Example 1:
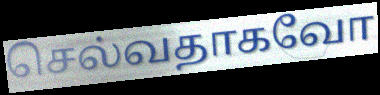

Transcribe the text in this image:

செல்வதாகவோ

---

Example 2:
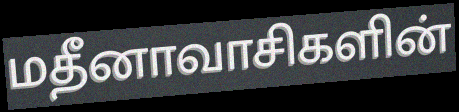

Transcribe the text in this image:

மதீனாவாசிகளின்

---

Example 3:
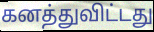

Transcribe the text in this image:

கனத்துவிட்டது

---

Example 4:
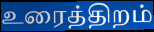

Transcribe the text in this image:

உரைத்திறம்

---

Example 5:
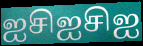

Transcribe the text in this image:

ஐசிஐசிஐ